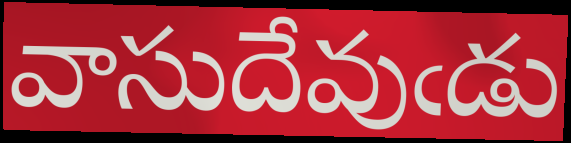
వాసుదేవుఁడు